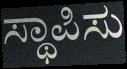
ಸ್ಥಾಪಿಸು